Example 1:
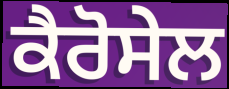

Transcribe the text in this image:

ਕੈਰੋਸੇਲ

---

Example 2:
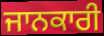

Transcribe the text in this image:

ਜਾਨਕਾਰੀ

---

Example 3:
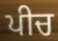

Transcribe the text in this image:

ਪੀਚ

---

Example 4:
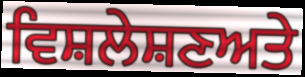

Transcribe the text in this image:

ਵਿਸ਼ਲੇਸ਼ਣਅਤੇ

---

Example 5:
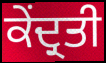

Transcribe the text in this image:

ਕੇਂਦ੍ਰਤੀ